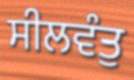
ਸੀਲਵੰਤੁ